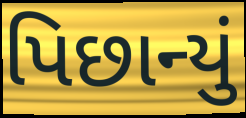
પિછાન્યું